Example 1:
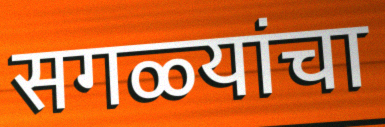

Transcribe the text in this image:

सगळ्यांचा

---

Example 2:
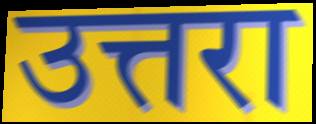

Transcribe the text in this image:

उत्तरा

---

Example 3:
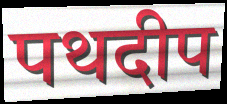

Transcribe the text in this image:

पथदीप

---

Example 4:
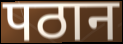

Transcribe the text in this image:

पठान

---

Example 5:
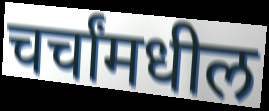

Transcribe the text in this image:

चर्चांमधील